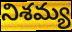
నిశమ్య